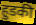
हुडकी